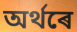
অৰ্থৰে